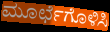
ಮೂರ್ಛೆಗೊಳಿಸಿ